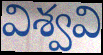
విశ్వవి